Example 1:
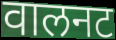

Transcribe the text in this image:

वालनट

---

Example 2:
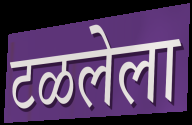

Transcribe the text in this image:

टळलेला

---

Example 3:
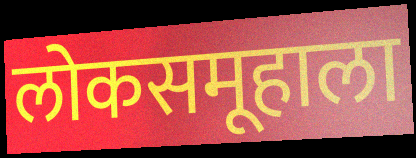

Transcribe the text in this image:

लोकसमूहाला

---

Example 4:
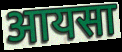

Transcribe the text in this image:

आयसा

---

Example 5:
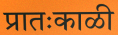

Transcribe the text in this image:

प्रातःकाळी